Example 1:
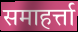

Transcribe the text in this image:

समाहर्त्ता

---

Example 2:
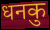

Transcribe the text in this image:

धनकु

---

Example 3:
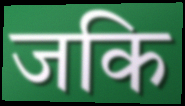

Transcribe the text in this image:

जकि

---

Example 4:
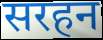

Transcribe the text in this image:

सरहन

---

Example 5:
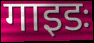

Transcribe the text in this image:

गाइडः